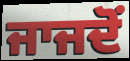
ਜਾਜਦੋਂ